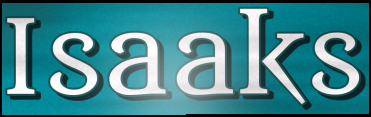
Isaaks